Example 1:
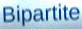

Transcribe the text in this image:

Bipartite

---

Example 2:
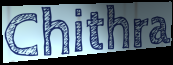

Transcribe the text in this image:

Chithra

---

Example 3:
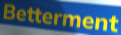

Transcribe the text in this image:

Betterment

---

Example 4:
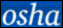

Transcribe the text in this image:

osha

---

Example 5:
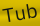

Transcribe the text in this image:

Tub